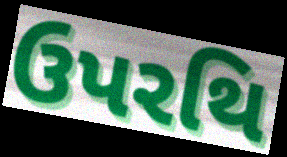
ઉપરથિ